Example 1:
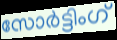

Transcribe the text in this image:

സോർട്ടിംഗ്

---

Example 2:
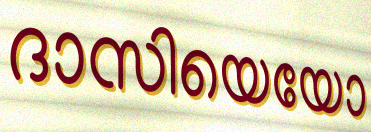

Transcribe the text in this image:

ദാസിയെയോ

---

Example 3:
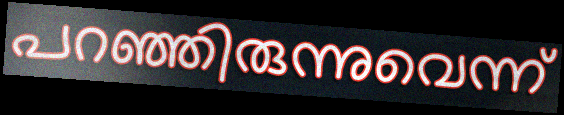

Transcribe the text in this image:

പറഞ്ഞിരുന്നുവെന്ന്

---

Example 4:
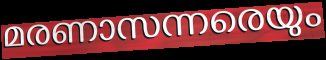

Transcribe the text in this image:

മരണാസന്നരെയും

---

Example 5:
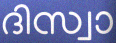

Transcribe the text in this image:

ദിസ്വാ